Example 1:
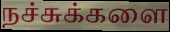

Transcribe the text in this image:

நச்சுக்களை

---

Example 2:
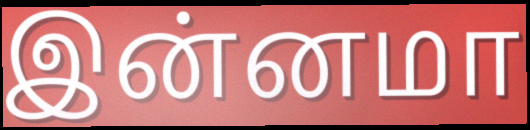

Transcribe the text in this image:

இன்னமா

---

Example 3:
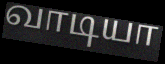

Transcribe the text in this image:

வாடியா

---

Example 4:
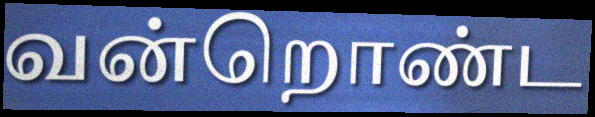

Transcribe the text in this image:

வன்றொண்ட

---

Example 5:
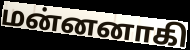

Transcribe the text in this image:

மன்னனாகி